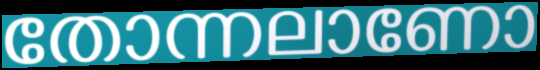
തോന്നലാണോ